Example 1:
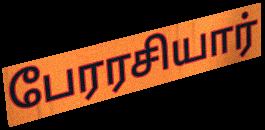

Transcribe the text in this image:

பேரரசியார்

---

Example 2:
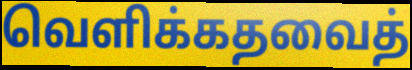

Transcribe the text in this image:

வெளிக்கதவைத்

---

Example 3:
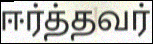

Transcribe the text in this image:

ஈர்த்தவர்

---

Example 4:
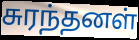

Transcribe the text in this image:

சுரந்தனள்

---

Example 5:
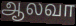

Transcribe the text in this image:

ஆலவா